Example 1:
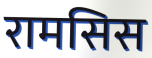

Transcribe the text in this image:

रामसिस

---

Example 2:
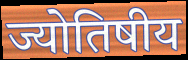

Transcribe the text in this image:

ज्योतिषीय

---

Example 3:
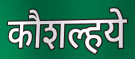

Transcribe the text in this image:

कौशल्हये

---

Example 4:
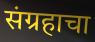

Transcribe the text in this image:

संग्रहाचा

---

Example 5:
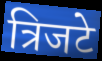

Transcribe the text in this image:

त्रिजटे